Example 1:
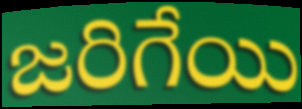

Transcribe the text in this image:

జరిగేయి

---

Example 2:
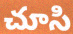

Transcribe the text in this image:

చూసి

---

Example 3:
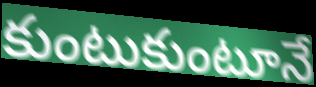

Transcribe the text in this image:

కుంటుకుంటూనే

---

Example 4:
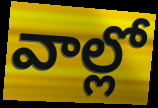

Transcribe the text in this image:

వాల్లో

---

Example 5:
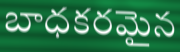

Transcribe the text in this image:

బాధకరమైన